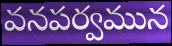
వనపర్వమున